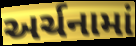
અર્ચનામાં